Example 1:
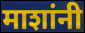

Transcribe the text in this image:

माशांनी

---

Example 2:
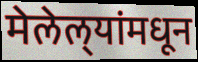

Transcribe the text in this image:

मेलेल्यांमधून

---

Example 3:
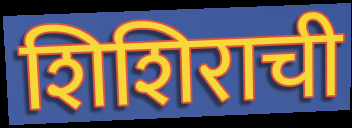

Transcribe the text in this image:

शिशिराची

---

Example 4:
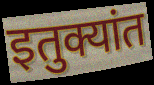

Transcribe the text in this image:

इतुक्यांत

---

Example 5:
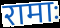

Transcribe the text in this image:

रामाः